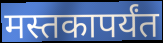
मस्तकापर्यंत